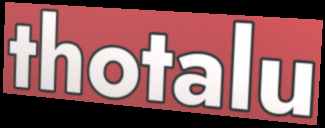
thotalu